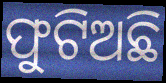
ଫୁଟିଅଛି